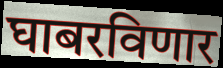
घाबरविणार